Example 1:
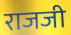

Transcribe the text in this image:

राजजी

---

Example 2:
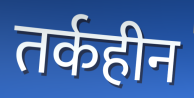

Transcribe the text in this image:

तर्कहीन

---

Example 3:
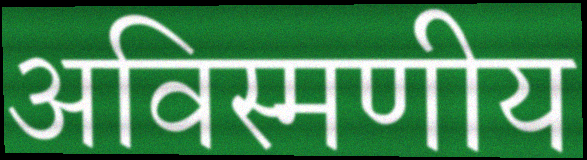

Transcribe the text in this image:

अविस्मणीय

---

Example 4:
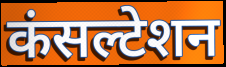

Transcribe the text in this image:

कंसल्टेशन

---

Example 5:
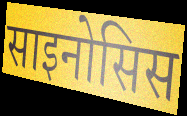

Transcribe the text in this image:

साइनोसिस